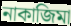
নাকাজিমা